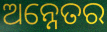
ଅନ୍ନେତର